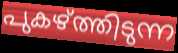
പുകഴ്ത്തിടുന്ന